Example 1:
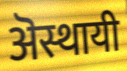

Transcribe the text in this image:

ऄस्थायी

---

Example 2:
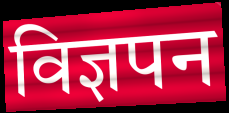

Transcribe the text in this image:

विज्ञपन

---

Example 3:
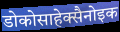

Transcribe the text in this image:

डोकोसाहेक्सैनोइक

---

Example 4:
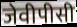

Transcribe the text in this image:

जेवीपीसी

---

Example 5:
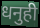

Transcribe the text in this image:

धनुही